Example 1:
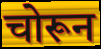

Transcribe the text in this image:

चोरून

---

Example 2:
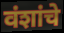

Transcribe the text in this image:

वंशांचे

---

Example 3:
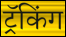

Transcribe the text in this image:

ट्रॅकिंग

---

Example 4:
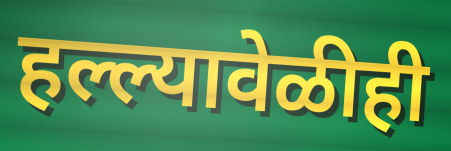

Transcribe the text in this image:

हल्ल्यावेळीही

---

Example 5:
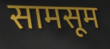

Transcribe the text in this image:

सामसूम